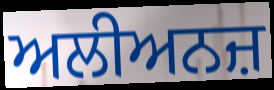
ਅਲੀਅਨਜ਼